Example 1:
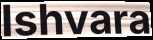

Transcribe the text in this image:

Ishvara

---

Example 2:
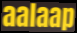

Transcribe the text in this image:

aalaap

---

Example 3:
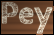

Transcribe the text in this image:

Pey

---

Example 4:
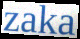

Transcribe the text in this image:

zaka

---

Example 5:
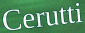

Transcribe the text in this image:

Cerutti